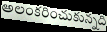
అలంకరించుకున్నది